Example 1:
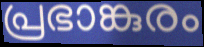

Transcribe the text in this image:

പ്രഭാങ്കുരം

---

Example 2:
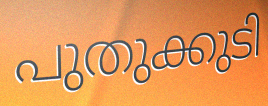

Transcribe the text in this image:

പുതുക്കുടി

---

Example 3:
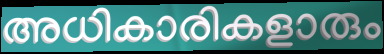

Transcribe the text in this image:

അധികാരികളാരും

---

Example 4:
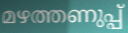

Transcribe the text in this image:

മഴത്തണുപ്പ്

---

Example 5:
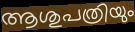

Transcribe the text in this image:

ആശുപത്രിയും